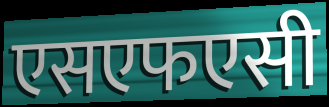
एसएफएसी